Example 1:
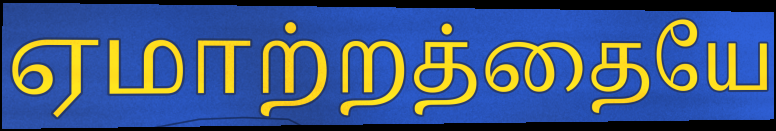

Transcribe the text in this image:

ஏமாற்றத்தையே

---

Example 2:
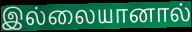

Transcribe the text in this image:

இல்லையானால்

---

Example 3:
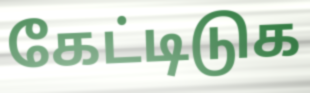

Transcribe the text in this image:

கேட்டிடுக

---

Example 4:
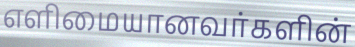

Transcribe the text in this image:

எளிமையானவர்களின்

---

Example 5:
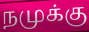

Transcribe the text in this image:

நமுக்கு